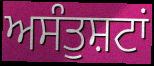
ਅਸੰਤੁਸ਼ਟਾਂ